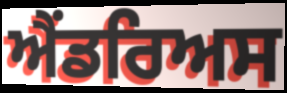
ਐਂਡਰਿਅਸ